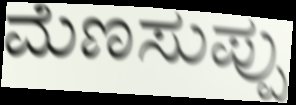
ಮೆಣಸುಪ್ಪು